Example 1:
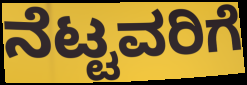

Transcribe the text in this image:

ನೆಟ್ಟವರಿಗೆ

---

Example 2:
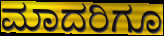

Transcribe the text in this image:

ಮಾದರಿಗೂ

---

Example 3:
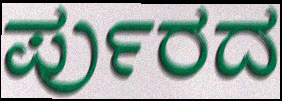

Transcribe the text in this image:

ರ್ಪುರದ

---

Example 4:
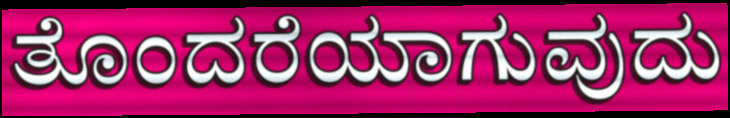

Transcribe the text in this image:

ತೊಂದರೆಯಾಗುವುದು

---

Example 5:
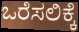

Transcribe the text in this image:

ಒರೆಸಲಿಕ್ಕೆ